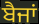
ਬੈਜਾਂ